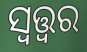
ସ୍ୱତ୍ତ୍ୱର